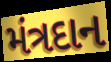
મંત્રદાન